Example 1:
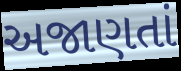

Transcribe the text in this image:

અજાણતાં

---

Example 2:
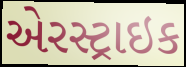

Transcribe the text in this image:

એરસ્ટ્રાઇક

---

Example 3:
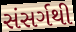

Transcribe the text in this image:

સંસર્ગથી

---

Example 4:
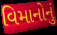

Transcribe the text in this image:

વિમાનોનું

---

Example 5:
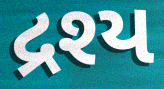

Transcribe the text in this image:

દ્રશ્ય